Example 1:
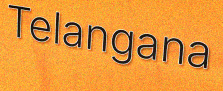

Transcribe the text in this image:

Telangana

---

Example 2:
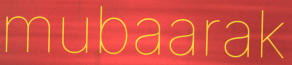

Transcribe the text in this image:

mubaarak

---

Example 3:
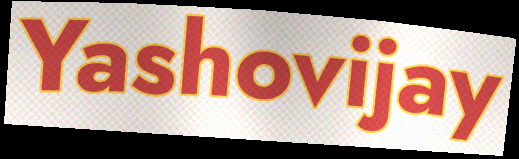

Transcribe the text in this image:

Yashovijay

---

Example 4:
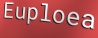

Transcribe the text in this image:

Euploea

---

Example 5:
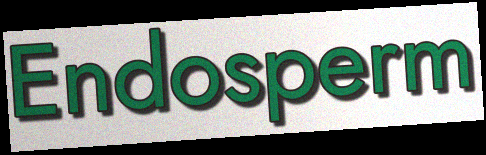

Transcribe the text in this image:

Endosperm